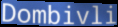
Dombivli